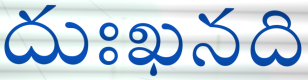
దుఃఖనది